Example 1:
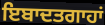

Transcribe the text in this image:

ਇਬਾਦਤਗਾਹਾਂ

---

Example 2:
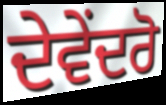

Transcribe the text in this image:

ਦੇਵੇਂਦਰੋ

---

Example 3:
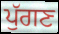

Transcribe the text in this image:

ਪੁੱਗਣ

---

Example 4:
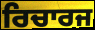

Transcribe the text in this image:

ਰਿਚਾਰਜ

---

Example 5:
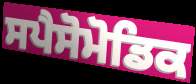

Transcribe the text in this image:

ਸਪੈਸੋਮੋਡਿਕ